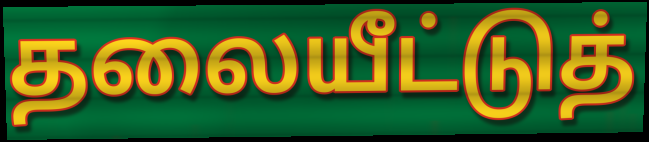
தலையீட்டுத்